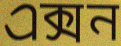
এক্সন